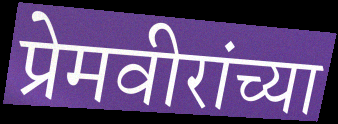
प्रेमवीरांच्या